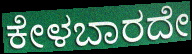
ಕೇಳಬಾರದೇ